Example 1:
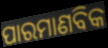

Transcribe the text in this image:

ପାରମାଣବିକ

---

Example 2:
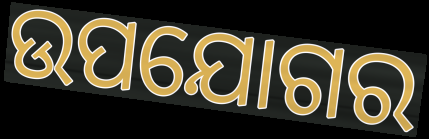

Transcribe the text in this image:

ଉପଯୋଗର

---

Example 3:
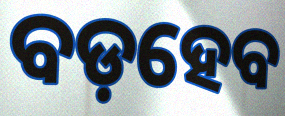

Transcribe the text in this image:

ବଡ଼ହେବ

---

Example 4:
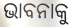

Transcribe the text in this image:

ଭାବନାକୁ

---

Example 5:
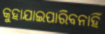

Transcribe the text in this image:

କୁହାଯାଇପାରିବନାହିଁ